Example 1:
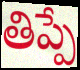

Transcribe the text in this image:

తిప్పే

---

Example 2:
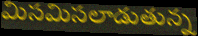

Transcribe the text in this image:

మిసమిసలాడుతున్న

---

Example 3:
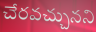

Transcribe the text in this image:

చేరవచ్చునని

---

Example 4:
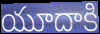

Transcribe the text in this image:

యూదాకి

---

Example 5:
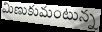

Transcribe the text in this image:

మిణుకుమంటున్న